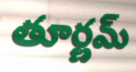
తూర్ణమ్